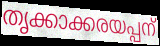
തൃക്കാക്കരയപ്പന്